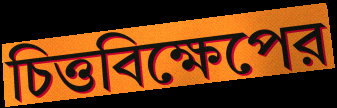
চিত্তবিক্ষেপের